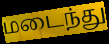
மடைந்து